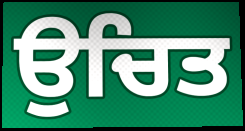
ਉਚਿਤ